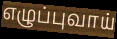
எழுப்புவாய்